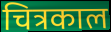
चित्रकाल